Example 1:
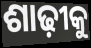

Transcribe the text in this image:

ଶାଢ଼ୀକୁ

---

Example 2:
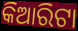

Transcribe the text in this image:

କିଆରିଟା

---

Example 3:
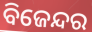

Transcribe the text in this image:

ବିଜେନ୍ଦର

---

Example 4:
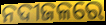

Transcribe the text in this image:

ନଦୀଜଳରେ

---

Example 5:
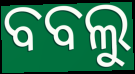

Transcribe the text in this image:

ବବଲୁ